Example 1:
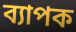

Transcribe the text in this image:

ব্যাপক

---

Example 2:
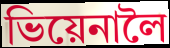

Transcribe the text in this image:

ভিয়েনালৈ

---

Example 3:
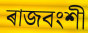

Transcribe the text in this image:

ৰাজবংশী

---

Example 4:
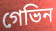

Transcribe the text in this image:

গেভিন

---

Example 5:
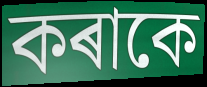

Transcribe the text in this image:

কৰাকে